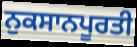
ਨੁਕਸਾਨਪੂਰਤੀ